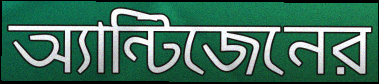
অ্যান্টিজেনের